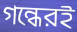
গন্ধেরই